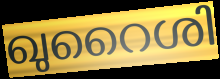
ഖുറൈശി